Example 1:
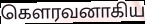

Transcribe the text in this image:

கௌரவனாகிய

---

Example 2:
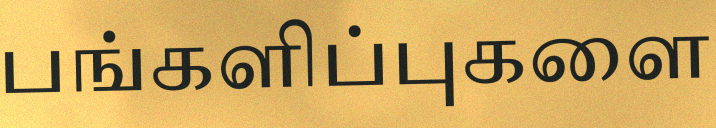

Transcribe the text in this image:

பங்களிப்புகளை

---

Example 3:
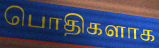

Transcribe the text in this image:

பொதிகளாக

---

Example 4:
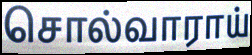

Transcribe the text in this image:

சொல்வாராய்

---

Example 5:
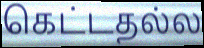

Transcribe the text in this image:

கெட்டதல்ல